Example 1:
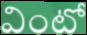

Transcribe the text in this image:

వింటో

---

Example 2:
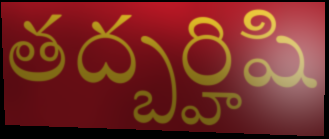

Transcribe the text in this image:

తద్బర్హిషి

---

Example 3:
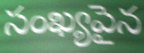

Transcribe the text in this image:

సంఖ్యపైన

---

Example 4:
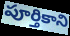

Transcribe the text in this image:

పూర్తికాని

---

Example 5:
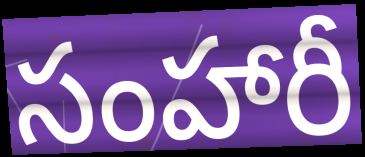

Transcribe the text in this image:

సంహారీ